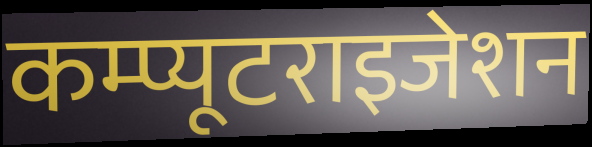
कम्प्यूटराइजेशन